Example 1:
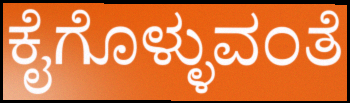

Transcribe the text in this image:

ಕೈಗೊಳ್ಳುವಂತೆ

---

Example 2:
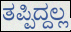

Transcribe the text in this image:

ತಪ್ಪಿದ್ದಲ್ಲ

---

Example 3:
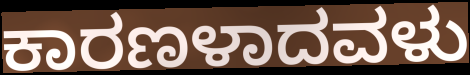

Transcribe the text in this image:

ಕಾರಣಳಾದವಳು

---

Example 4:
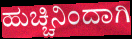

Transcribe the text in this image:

ಹುಚ್ಚಿನಿಂದಾಗಿ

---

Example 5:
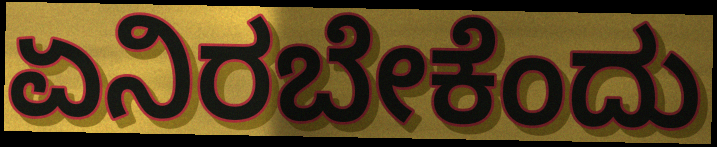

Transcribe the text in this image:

ಏನಿರಬೇಕೆಂದು